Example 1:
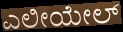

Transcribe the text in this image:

ಎಲೀಯೇಲ್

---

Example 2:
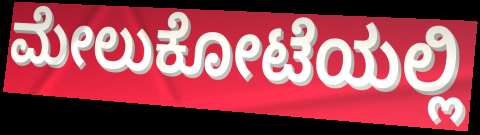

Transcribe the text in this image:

ಮೇಲುಕೋಟೆಯಲ್ಲಿ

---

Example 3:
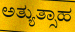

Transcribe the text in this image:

ಅತ್ಯುತ್ಸಾಹ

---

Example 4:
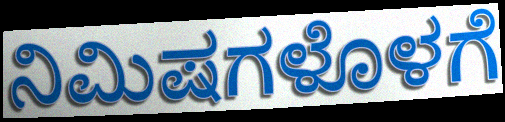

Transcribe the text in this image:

ನಿಮಿಷಗಳೊಳಗೆ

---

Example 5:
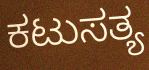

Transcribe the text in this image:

ಕಟುಸತ್ಯ